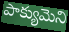
పాక్యుమెని